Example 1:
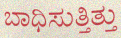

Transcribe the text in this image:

ಬಾಧಿಸುತ್ತಿತ್ತು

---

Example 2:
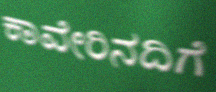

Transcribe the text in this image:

ಕಾವೇರಿನದಿಗೆ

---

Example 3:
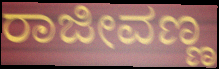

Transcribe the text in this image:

ರಾಜೀವಣ್ಣ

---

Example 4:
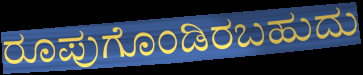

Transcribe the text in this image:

ರೂಪುಗೊಂಡಿರಬಹುದು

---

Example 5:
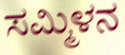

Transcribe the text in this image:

ಸಮ್ಮಿಳನ